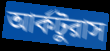
আর্কটুরাস